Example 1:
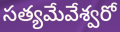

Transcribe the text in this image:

సత్యమేవేశ్వరో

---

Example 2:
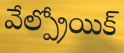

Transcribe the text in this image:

వేల్ప్రోయిక్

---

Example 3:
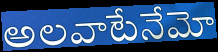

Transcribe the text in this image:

అలవాటేనేమో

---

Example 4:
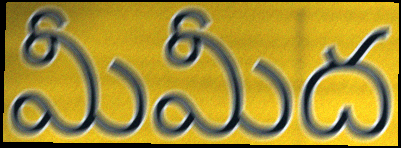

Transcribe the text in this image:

మీమీద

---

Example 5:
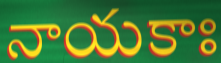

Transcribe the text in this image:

నాయకాః